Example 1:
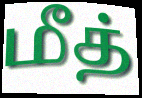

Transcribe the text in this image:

மீத்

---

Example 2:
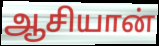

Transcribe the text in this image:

ஆசியான்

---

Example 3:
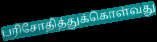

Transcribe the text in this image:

பரிசோதித்துக்கொள்வது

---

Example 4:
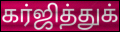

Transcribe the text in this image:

கர்ஜித்துக்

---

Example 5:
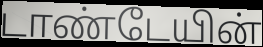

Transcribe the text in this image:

டாண்டேயின்